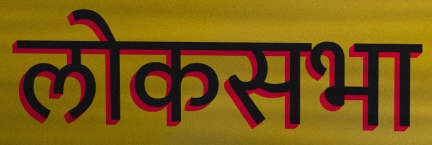
लोकसभा